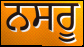
ਨਸਰੂ